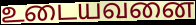
உடையவனை